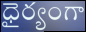
ధైర్యంగా